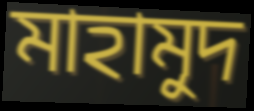
মাহামুদ